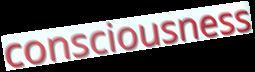
consciousness